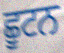
ਛੂਟਨ